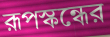
রূপস্কন্ধের